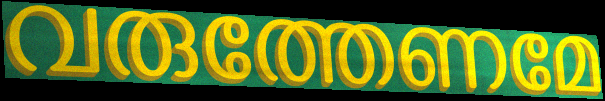
വരുത്തേണമേ